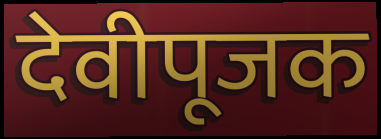
देवीपूजक